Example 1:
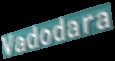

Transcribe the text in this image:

Vadodara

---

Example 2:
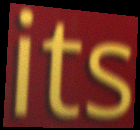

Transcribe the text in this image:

its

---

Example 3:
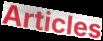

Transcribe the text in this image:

Articles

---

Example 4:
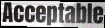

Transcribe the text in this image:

Acceptable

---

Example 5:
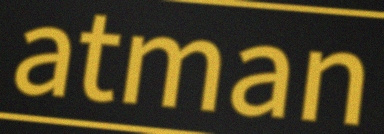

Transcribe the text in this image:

atman